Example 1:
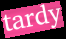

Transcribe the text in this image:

tardy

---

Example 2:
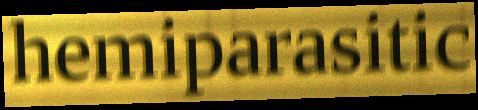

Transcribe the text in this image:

hemiparasitic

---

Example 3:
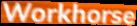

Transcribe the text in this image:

Workhorse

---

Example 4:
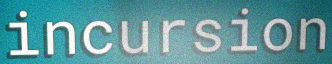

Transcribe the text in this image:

incursion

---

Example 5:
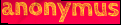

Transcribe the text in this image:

anonymus